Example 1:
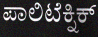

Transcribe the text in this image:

ಪಾಲಿಟೆಕ್ನಿಕ್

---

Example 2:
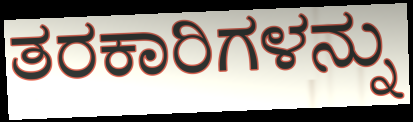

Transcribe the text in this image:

ತರಕಾರಿಗಳನ್ನು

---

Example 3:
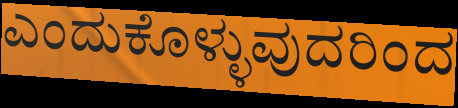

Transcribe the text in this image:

ಎಂದುಕೊಳ್ಳುವುದರಿಂದ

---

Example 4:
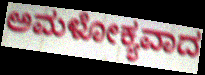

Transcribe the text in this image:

ಅಮಳೋಕ್ಯವಾದ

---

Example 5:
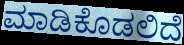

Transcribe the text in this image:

ಮಾಡಿಕೊಡಲಿದೆ